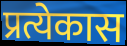
प्रत्येकास